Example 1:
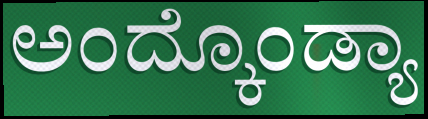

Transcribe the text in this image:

ಅಂದ್ಕೊಂಡ್ಯಾ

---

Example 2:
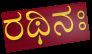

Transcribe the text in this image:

ರಥಿನಃ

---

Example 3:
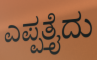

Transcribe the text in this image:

ಎಪ್ಪತ್ತೈದು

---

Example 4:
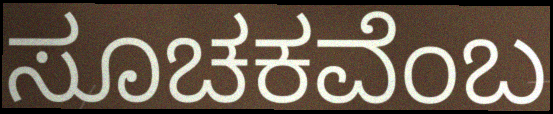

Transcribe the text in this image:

ಸೂಚಕವೆಂಬ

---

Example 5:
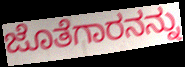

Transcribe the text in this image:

ಜೊತೆಗಾರನನ್ನು